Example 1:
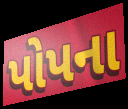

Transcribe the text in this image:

પોપના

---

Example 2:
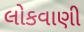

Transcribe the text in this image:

લોકવાણી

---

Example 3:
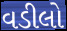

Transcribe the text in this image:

વડીલો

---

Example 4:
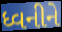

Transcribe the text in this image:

ધ્વનીને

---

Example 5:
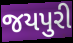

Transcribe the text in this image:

જયપુરી